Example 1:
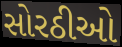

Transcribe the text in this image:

સોરઠીઓ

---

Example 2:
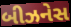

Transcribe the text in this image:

બીઝનેસ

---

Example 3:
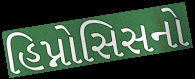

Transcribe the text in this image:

હિપ્નોસિસનો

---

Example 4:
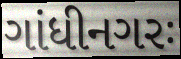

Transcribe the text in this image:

ગાંધીનગરઃ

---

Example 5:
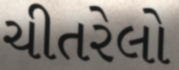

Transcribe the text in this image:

ચીતરેલો